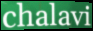
chalavi